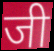
जी